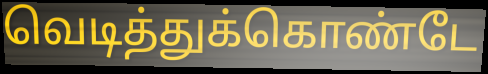
வெடித்துக்கொண்டே